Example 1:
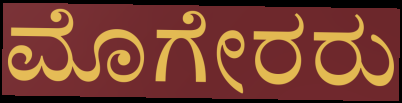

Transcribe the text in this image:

ಮೊಗೇರರು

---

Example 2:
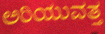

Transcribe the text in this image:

ಅರಿಯುವತ್ತ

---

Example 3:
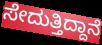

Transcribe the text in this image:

ಸೇದುತ್ತಿದ್ದಾನೆ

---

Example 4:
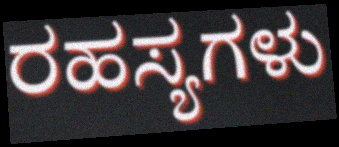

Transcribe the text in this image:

ರಹಸ್ಯಗಳು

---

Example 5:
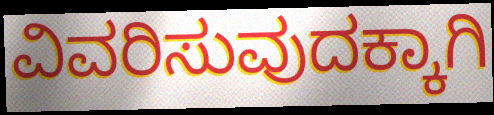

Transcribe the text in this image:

ವಿವರಿಸುವುದಕ್ಕಾಗಿ